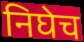
निघेच